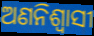
ଅଣନିଶ୍ୱାସୀ